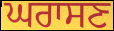
ਘਰਾਸਣ